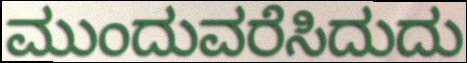
ಮುಂದುವರೆಸಿದುದು